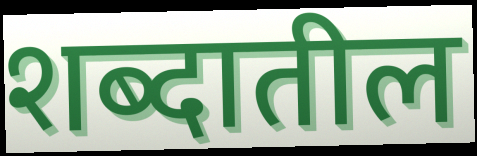
शब्दातील